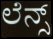
ಲೆನ್ಸ್